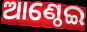
ଆଣ୍ଠେଇ